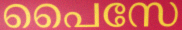
പൈസേ